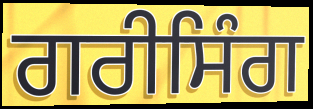
ਗਰੀਸਿੰਗ